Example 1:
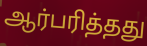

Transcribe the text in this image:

ஆர்பரித்தது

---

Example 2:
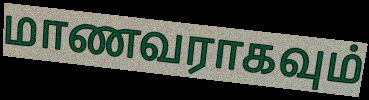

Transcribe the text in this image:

மாணவராகவும்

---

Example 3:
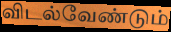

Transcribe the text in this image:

விடல்வேண்டும்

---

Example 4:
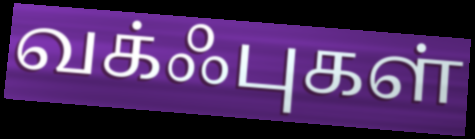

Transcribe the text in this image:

வக்ஃபுகள்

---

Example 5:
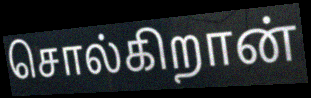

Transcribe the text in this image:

சொல்கிறான்